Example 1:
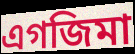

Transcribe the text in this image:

এগজিমা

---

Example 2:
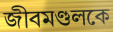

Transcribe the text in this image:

জীবমণ্ডলকে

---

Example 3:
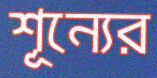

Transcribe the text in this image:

শূন্যের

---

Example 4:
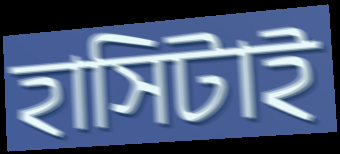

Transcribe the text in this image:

হাসিটাই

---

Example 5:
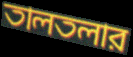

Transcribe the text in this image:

তালতলার